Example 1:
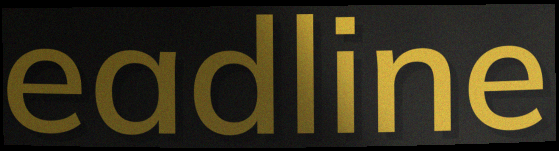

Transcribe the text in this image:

eadline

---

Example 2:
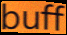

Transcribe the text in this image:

buff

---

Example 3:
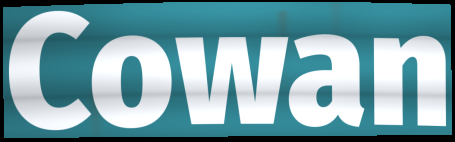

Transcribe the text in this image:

Cowan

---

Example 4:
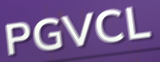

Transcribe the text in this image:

PGVCL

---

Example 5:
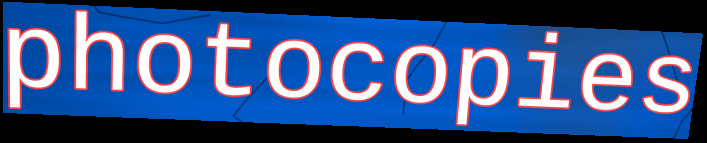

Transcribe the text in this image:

photocopies